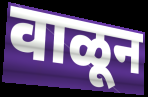
वाळून